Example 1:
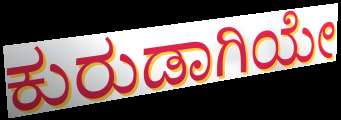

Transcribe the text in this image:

ಕುರುಡಾಗಿಯೇ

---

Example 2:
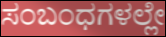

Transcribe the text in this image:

ಸಂಬಂಧಗಳಲ್ಲೇ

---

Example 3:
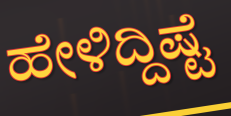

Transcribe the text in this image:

ಹೇಳಿದ್ದಿಷ್ಟೆ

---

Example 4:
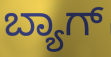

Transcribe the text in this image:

ಬ್ಯಾಗ್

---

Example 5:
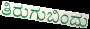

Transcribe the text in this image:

ತಿರುಗುಬಿಂದು